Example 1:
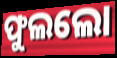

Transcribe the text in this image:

ଫୁଲଲୋ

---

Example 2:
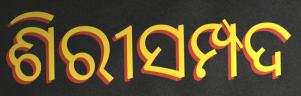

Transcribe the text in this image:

ଶିରୀସମ୍ପଦ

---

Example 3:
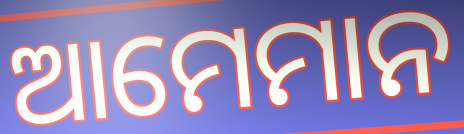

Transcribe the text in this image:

ଆମେମାନ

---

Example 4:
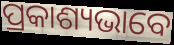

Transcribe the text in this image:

ପ୍ରକାଶ୍ୟଭାବେ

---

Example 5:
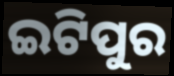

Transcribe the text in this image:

ଇଟିପୁର